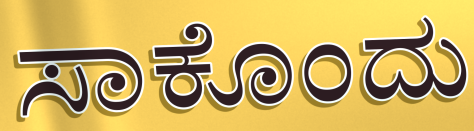
ಸಾಕೊಂದು